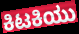
ಕಿಟಕಿಯು